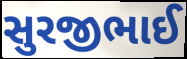
સુરજીભાઈ